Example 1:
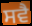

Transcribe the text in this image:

ਸਵੈ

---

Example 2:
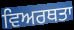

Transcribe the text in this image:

ਵਿਅਰਥਤਾ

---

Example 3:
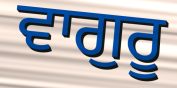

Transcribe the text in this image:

ਵਾਗੁਰੂ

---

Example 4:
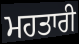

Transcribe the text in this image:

ਮਹਤਾਰੀ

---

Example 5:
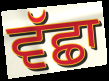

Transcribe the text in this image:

ਵੱਛਾ